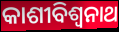
କାଶୀବିଶ୍ୱନାଥ